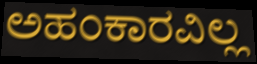
ಅಹಂಕಾರವಿಲ್ಲ